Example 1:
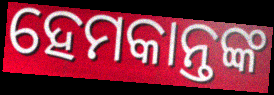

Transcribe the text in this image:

ହେମକାନ୍ତଙ୍କ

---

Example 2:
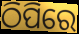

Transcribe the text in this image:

ଠିପିରେ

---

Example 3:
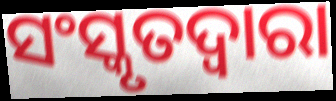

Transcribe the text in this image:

ସଂସ୍କୃତଦ୍ୱାରା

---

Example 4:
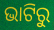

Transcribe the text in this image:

ଭାଟିରୁ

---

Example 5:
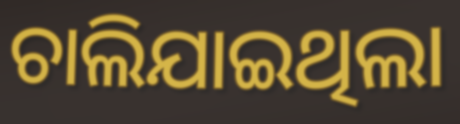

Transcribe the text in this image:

ଚାଲିଯାଇଥିଲା